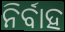
ନିର୍ବାହ